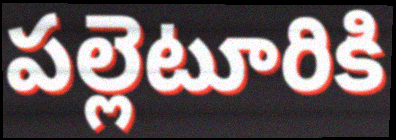
పల్లెటూరికి